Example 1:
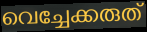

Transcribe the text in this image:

വെച്ചേക്കരുത്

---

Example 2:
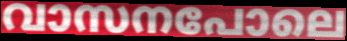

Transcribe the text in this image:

വാസനപോലെ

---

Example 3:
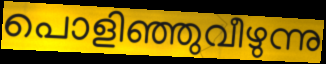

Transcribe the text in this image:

പൊളിഞ്ഞുവീഴുന്നു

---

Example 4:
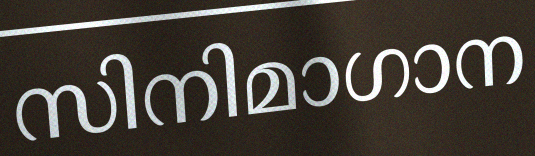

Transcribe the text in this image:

സിനിമാഗാന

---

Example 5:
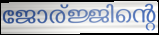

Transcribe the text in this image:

ജോര്ജ്ജിന്റെ